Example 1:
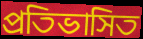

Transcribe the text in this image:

প্রতিভাসিত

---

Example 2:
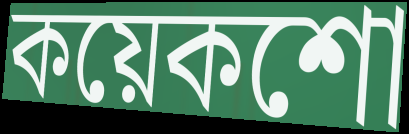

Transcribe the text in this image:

কয়েকশো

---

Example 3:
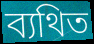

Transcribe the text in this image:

ব্যথিত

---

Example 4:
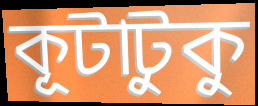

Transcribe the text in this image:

কূটাটুকু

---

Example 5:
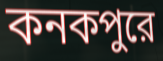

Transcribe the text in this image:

কনকপুরে